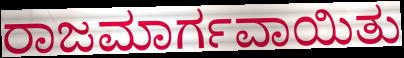
ರಾಜಮಾರ್ಗವಾಯಿತು